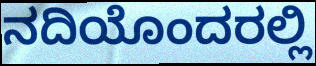
ನದಿಯೊಂದರಲ್ಲಿ